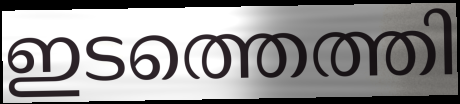
ഇടത്തെത്തി